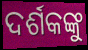
ଦର୍ଶକଙ୍କୁ